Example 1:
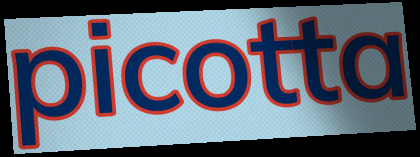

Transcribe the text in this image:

picotta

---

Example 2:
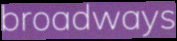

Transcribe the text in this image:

broadways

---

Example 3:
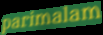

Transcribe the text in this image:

parimalam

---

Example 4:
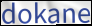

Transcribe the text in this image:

dokane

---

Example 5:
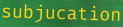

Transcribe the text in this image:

subjucation